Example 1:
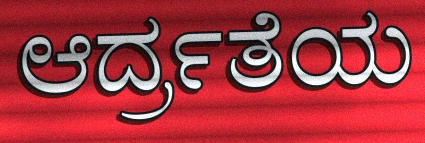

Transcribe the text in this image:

ಆರ್ದ್ರತೆಯ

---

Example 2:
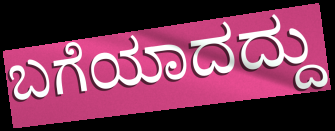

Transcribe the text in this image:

ಬಗೆಯಾದದ್ದು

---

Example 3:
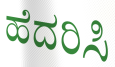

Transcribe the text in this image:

ಹೆದರಿಸಿ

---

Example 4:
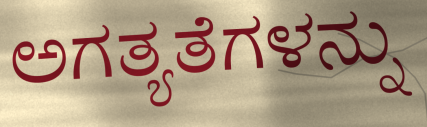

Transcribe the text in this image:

ಅಗತ್ಯತೆಗಳನ್ನು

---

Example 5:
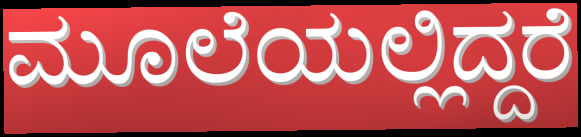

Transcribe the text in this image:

ಮೂಲೆಯಲ್ಲಿದ್ದರೆ